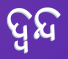
ଦ୍ବନ୍ଦ